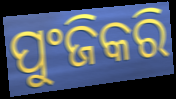
ପୁଂଜିକରି